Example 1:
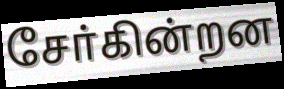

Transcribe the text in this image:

சேர்கின்றன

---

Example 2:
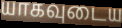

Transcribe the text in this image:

யாகவுடைய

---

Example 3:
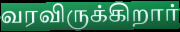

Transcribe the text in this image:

வரவிருக்கிறார்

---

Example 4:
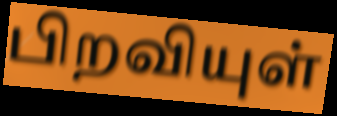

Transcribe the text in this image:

பிறவியுள்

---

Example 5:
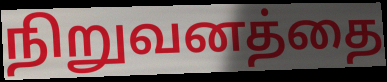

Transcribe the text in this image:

நிறுவனத்தை